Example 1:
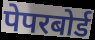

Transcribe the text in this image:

पेपरबोर्ड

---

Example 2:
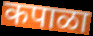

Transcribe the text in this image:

कपाळा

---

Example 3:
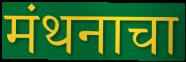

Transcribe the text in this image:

मंथनाचा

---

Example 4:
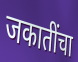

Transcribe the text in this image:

जकातींचा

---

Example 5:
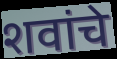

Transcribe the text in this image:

शवांचे